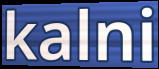
kalni